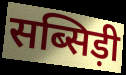
सब्सिड़ी